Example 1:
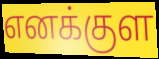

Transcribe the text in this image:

எனக்குள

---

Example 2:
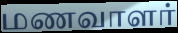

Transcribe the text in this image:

மணவாளர்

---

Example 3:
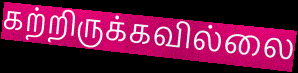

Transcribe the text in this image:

கற்றிருக்கவில்லை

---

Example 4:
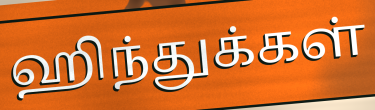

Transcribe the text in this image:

ஹிந்துக்கள்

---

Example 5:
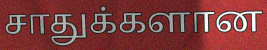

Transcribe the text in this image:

சாதுக்களான